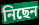
নিছেন